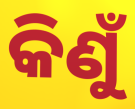
କିଣୁଁ